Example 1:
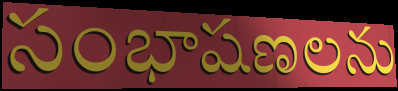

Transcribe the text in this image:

సంభాషణలను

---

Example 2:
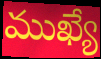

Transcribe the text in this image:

ముఖ్యే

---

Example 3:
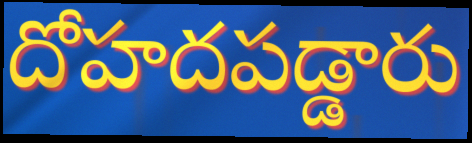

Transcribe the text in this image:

దోహదపడ్డారు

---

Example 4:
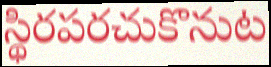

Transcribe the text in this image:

స్థిరపరచుకొనుట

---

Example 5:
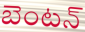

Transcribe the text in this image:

బెంటన్